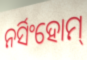
ନର୍ସିଂହୋମ୍